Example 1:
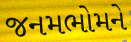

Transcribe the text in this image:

જનમભોમને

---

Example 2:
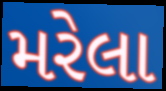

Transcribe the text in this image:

મરેલા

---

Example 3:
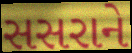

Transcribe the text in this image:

સસરાને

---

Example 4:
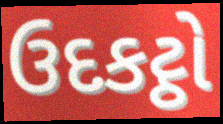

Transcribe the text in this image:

ઉદકટ્ઠો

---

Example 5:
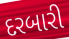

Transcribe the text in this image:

દરબારી